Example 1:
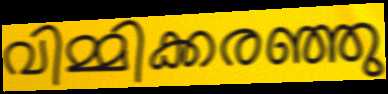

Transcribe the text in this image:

വിമ്മിക്കരഞ്ഞു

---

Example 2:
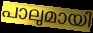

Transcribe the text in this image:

പാലുമായി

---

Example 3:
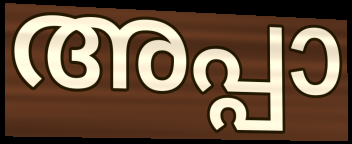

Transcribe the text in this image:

അപ്പാ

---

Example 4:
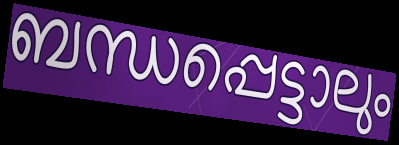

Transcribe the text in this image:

ബന്ധപ്പെട്ടാലും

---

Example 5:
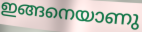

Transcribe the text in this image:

ഇങ്ങനെയാണു